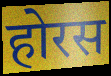
होरस